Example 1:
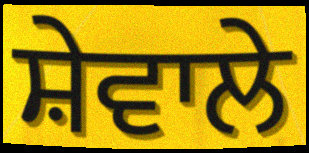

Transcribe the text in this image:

ਸ਼ੇਵਾਲੇ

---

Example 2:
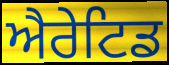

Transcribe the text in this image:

ਐਰੇਟਿਡ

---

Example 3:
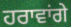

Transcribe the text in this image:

ਹਰਾਵਾਂਗੇ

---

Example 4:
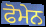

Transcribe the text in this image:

ਫੋਮੇਨ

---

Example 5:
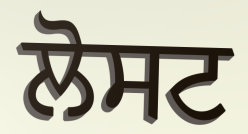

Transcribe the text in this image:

ਲੋਸਟ